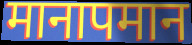
मानापमान